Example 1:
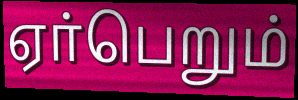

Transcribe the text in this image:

ஏர்பெறும்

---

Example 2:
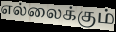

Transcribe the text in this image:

எல்லைக்கும்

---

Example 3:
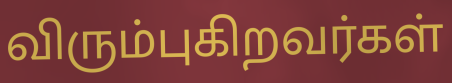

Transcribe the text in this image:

விரும்புகிறவர்கள்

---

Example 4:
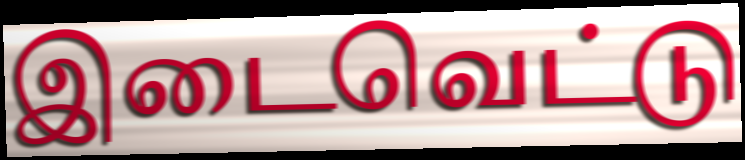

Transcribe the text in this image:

இடைவெட்டு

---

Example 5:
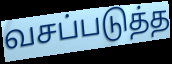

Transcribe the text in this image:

வசப்படுத்த